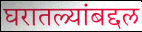
घरातल्यांबद्दल